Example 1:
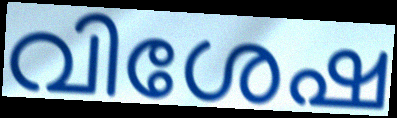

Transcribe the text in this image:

വിശേഷ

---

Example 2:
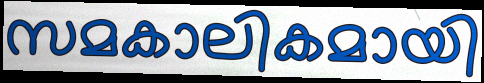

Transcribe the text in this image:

സമകാലികമായി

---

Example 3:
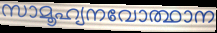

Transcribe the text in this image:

സാമൂഹ്യനവോത്ഥാന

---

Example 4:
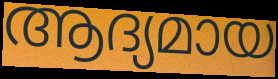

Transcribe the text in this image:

ആദ്യമായ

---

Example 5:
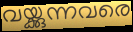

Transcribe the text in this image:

വയ്ക്കുന്നവരെ